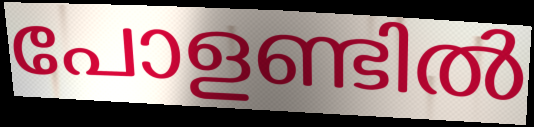
പോളണ്ടിൽ